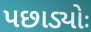
પછાડ્યોઃ